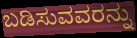
ಬಡಿಸುವವರನ್ನು